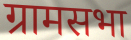
ग्रामसभा